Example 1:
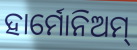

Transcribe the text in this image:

ହାର୍ମୋନିଅମ୍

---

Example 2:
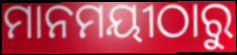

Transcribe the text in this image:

ମାନମୟୀଠାରୁ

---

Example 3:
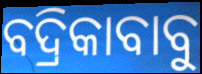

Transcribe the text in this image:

ବଦ୍ରିକାବାବୁ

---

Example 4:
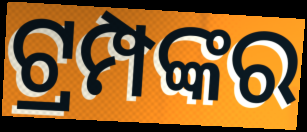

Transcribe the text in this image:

ଟ୍ରମ୍ପଙ୍କର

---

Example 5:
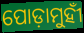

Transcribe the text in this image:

ପୋଡ଼ାମୁହୀଁ